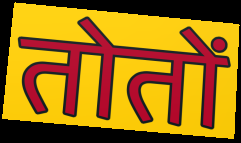
तोतों